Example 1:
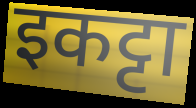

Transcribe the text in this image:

इकट्टा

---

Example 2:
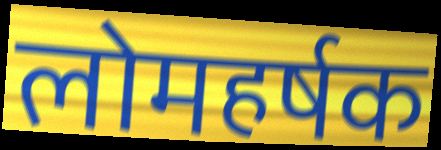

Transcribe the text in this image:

लोमहर्षक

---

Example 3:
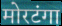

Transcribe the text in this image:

मोरटंगा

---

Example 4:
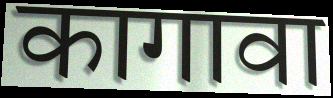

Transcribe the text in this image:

कागावा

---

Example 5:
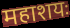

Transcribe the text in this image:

महाशयः